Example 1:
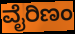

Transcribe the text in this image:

ವೈರಿಣಂ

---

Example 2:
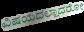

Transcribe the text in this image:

ವಿಷಯದಲ್ಲಾದರೋ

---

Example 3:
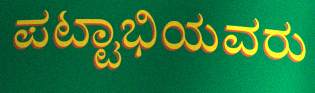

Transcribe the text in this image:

ಪಟ್ಟಾಭಿಯವರು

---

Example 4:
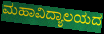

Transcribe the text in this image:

ಮಹಾವಿದ್ಯಾಲಯದ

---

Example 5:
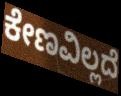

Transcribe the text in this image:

ಕೇಣವಿಲ್ಲದೆ